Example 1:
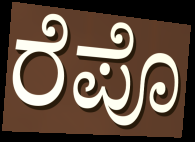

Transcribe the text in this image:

ರೆಪೊ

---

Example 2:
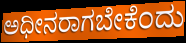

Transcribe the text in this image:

ಅಧೀನರಾಗಬೇಕೆಂದು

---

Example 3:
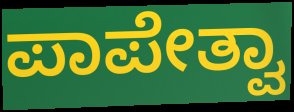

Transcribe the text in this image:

ಪಾಪೇತ್ವಾ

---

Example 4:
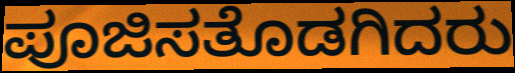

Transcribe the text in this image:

ಪೂಜಿಸತೊಡಗಿದರು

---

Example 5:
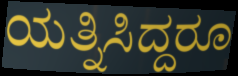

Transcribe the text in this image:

ಯತ್ನಿಸಿದ್ದರೂ